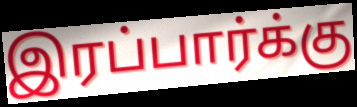
இரப்பார்க்கு